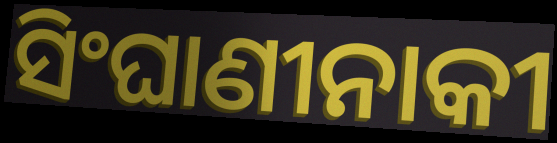
ସିଂଘାଣୀନାକୀ